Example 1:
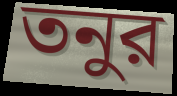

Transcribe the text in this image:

তনুর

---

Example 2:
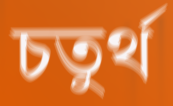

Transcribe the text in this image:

চতুর্থ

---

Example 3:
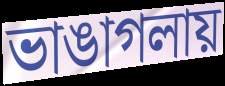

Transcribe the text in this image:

ভাঙাগলায়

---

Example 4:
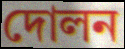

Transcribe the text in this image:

দোলন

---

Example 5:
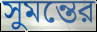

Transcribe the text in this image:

সুমন্তের